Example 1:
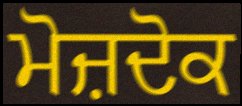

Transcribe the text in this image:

ਮੋਜ਼ਦੋਕ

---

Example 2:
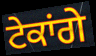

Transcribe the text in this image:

ਟੇਕਾਂਗੇ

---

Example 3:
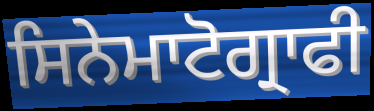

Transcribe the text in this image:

ਸਿਨੇਮਾਟੋਗ੍ਰਾਫੀ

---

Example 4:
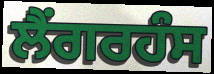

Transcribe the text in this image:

ਲੈਂਗਰਹੰਸ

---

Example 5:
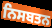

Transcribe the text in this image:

ਨਿਸਬਤਨ